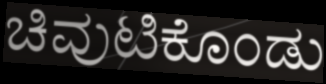
ಚಿವುಟಿಕೊಂಡು